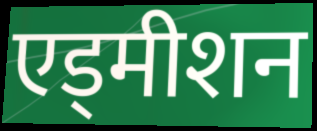
एड्मीशन